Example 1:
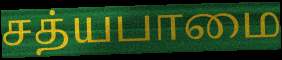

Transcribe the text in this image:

சத்யபாமை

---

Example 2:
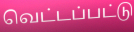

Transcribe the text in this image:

வெட்டப்பட்டு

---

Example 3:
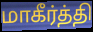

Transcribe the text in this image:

மாகீர்த்தி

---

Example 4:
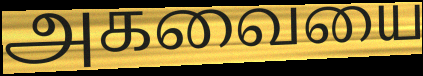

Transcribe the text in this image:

அகவையை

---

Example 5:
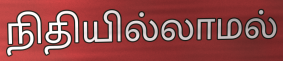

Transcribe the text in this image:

நிதியில்லாமல்